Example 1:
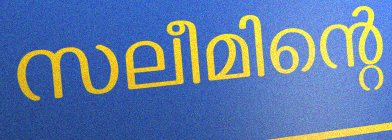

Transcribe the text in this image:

സലീമിന്റെ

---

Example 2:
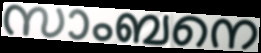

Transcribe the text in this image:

സാംബനെ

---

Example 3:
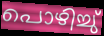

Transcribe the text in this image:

പൊഴിച്ചു്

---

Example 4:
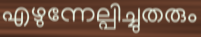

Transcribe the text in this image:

എഴുന്നേല്പിച്ചുതരും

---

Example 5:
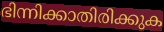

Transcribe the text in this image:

ഭിന്നിക്കാതിരിക്കുക